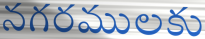
నగరములకు